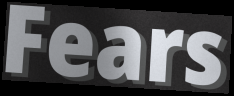
Fears